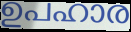
ഉപഹാര